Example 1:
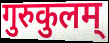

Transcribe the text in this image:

गुरुकुलम्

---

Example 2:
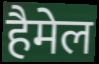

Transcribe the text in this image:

हैमेल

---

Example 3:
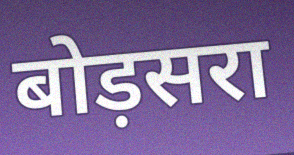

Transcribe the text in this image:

बोड़सरा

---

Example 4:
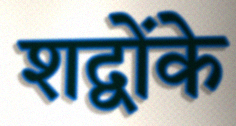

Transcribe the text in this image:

शद्वोंके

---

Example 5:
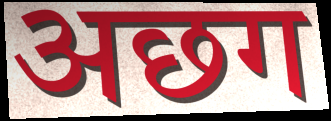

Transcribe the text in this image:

अछग